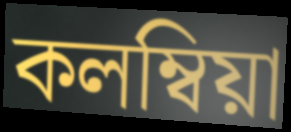
কলম্বিয়া